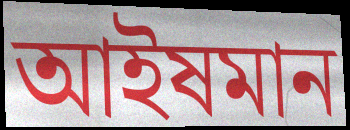
আইষমান